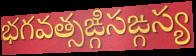
భగవత్సఙ్గిసఙ్గస్య